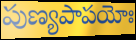
పుణ్యపాపయోః